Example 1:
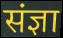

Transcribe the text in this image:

संज्ञा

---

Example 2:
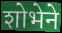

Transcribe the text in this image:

शोभेने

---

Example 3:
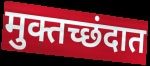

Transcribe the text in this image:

मुक्तच्छंदात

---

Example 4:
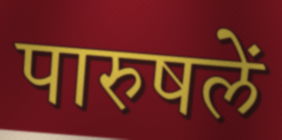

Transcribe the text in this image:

पारुषलें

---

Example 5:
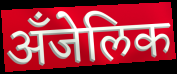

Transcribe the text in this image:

अँजेलिक